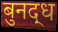
बुनद्ध